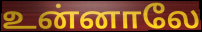
உன்னாலே